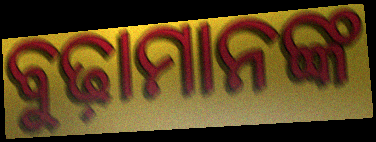
ବୁଢ଼ାମାନଙ୍କ